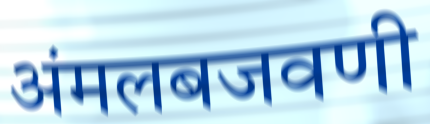
अंमलबजवणी